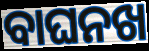
ବାଘନଖ